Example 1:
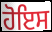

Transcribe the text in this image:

ਹੋਇਸ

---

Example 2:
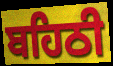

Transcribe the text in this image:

ਬਹਿਠੀ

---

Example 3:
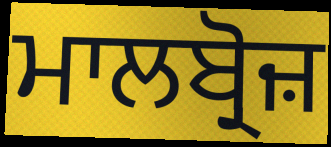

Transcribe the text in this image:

ਮਾਲਬ੍ਰੋਜ਼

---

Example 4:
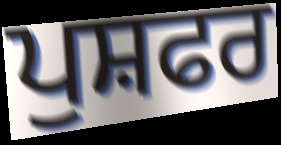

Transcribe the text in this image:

ਪੁਸ਼ਫਰ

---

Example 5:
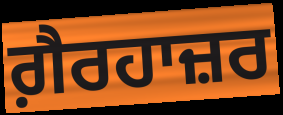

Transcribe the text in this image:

ਗ਼ੈਰਹਾਜ਼ਰ